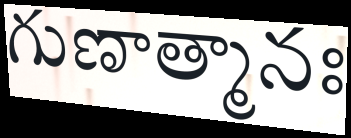
గుణాత్మానః